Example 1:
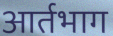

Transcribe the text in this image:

आर्तभाग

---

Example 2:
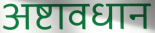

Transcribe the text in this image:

अष्टावधान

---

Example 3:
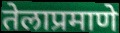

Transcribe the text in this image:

तेलाप्रमाणे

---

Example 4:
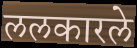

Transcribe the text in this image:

ललकारले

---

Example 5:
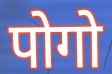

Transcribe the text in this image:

पोगो